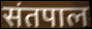
संतपाल